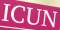
ICUN